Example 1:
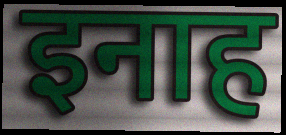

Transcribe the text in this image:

इनाह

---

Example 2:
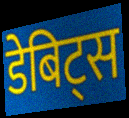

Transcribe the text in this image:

डेबिट्स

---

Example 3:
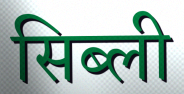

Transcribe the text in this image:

सिब्ली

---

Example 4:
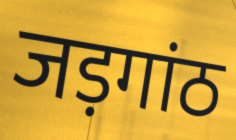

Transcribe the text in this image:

जड़गांठ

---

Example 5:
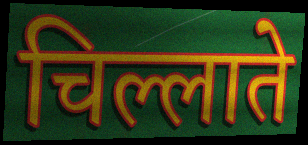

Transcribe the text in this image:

चिल्लाते